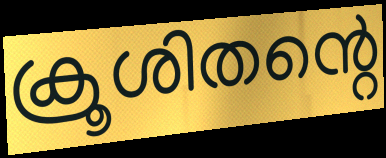
ക്രൂശിതന്റെ